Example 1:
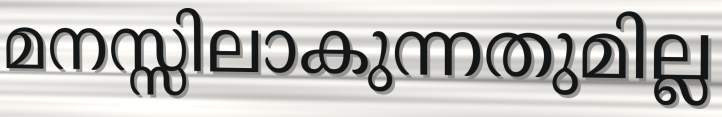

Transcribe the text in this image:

മനസ്സിലാകുന്നതുമില്ല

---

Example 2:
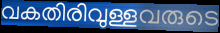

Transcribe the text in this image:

വകതിരിവുള്ളവരുടെ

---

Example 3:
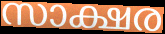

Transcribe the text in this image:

സാക്ഷര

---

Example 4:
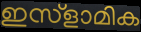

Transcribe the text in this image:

ഇസ്ളാമിക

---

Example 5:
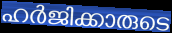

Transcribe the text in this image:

ഹർജിക്കാരുടെ